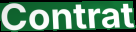
Contrat